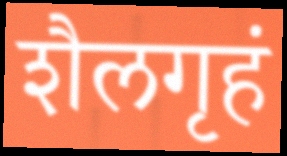
शैलगृहं